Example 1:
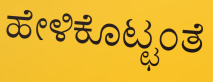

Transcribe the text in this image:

ಹೇಳಿಕೊಟ್ಟಂತೆ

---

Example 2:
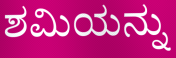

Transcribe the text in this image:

ಶಮಿಯನ್ನು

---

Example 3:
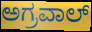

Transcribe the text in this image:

ಅಗ್ರವಾಲ್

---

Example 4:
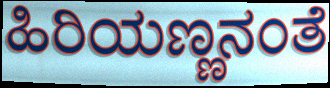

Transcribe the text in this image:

ಹಿರಿಯಣ್ಣನಂತೆ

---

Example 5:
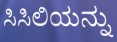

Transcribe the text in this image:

ಸಿಸಿಲಿಯನ್ನು